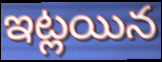
ఇట్లయిన